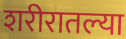
शरीरातल्या